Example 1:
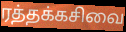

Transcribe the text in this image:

ரத்தக்கசிவை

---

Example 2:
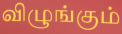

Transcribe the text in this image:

விழுங்கும்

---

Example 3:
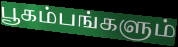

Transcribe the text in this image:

பூகம்பங்களும்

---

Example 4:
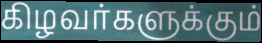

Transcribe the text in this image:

கிழவர்களுக்கும்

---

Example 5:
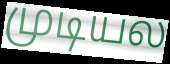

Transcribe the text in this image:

முடியல